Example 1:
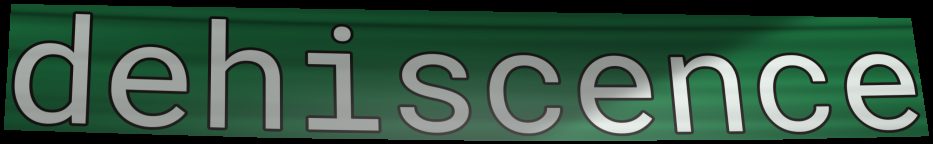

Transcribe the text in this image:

dehiscence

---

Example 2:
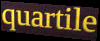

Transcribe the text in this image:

quartile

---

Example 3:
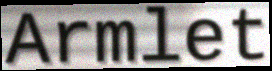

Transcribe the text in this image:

Armlet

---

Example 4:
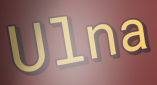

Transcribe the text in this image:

Ulna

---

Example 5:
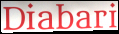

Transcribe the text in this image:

Diabari